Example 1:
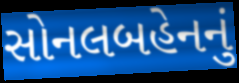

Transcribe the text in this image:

સોનલબહેનનું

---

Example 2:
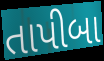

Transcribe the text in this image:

તાપીબા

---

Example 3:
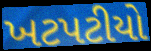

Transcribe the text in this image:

ખટપટીયો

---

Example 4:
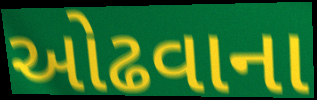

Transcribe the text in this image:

ઓઢવાના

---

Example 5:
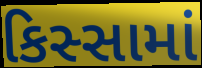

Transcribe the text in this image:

કિસ્સામાં